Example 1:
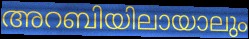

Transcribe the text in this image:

അറബിയിലായാലും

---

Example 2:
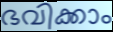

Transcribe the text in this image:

ഭവിക്കാം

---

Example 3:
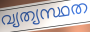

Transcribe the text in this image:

വ്യത്യസ്ഥത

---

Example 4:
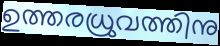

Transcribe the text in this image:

ഉത്തരധ്രുവത്തിനു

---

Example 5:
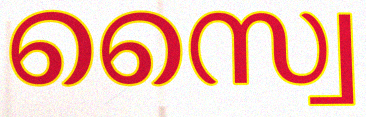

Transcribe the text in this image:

സ്വൈ